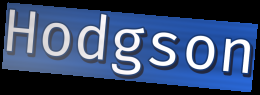
Hodgson